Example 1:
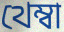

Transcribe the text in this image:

থেম্বা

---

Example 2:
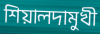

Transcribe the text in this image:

শিয়ালদামুখী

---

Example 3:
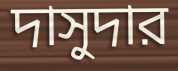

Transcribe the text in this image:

দাসুদার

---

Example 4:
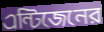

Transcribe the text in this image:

এন্টিজেনের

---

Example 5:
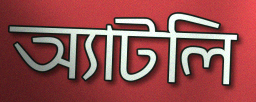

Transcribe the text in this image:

অ্যাটলি